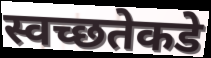
स्वच्छतेकडे